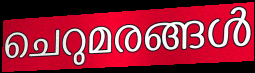
ചെറുമരങ്ങൾ